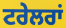
ਟਰੇਲਰਾਂ